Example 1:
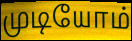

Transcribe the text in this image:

முடியோம்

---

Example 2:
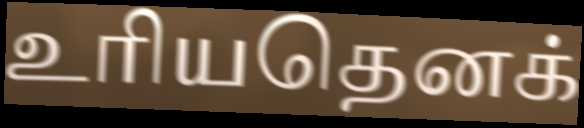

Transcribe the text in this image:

உரியதெனக்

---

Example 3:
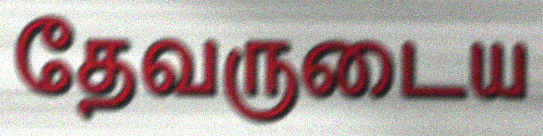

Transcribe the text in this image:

தேவருடைய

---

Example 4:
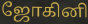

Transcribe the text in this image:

ஜோகினி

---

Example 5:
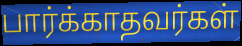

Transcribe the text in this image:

பார்க்காதவர்கள்